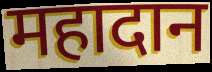
महादान